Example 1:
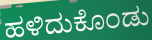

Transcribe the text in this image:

ಹಳಿದುಕೊಂಡು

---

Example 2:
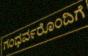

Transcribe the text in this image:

ಗಂಧರ್ವರೊಂದಿಗೆ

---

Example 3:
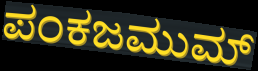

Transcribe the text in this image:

ಪಂಕಜಮುಮ್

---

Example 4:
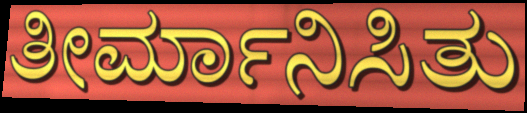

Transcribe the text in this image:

ತೀರ್ಮಾನಿಸಿತು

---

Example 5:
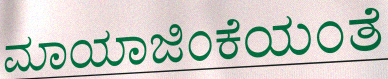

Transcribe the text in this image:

ಮಾಯಾಜಿಂಕೆಯಂತೆ